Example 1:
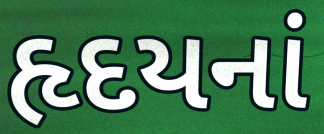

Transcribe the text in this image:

હૃદયનાં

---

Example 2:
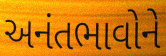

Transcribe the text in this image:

અનંતભાવોને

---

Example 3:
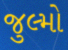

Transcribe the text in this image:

જુલ્મો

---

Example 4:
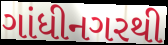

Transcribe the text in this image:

ગાંધીનગરથી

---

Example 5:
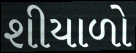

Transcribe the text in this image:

શીયાળો